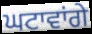
ਘਟਾਵਾਂਗੇ